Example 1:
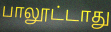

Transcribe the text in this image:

பாலூட்டாது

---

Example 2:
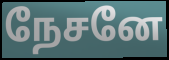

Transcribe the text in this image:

நேசனே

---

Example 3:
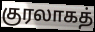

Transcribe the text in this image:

குரலாகத்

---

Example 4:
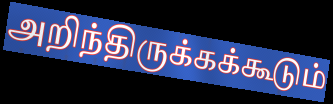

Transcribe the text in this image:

அறிந்திருக்கக்கூடும்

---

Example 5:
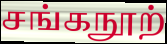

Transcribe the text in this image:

சங்கநூற்